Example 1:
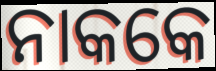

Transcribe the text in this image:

ନାକକେ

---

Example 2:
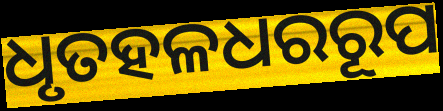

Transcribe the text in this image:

ଧୃତହଳଧରରୂପ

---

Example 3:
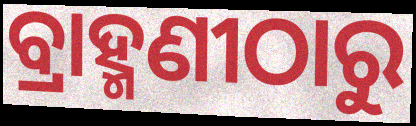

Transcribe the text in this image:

ବ୍ରାହ୍ମଣୀଠାରୁ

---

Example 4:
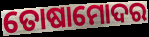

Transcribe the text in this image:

ତୋଷାମୋଦର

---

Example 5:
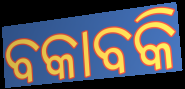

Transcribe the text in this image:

ବକାବକି